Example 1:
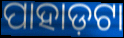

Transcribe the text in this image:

ପାହାଡ଼ଟା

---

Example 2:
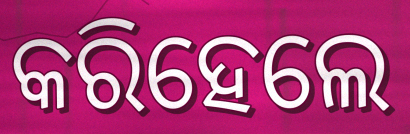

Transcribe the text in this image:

କରିହେଲେ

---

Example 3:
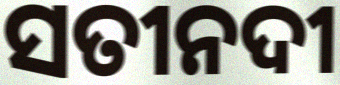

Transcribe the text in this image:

ସତୀନଦୀ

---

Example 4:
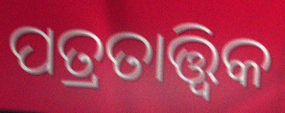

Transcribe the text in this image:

ପତ୍ରତାତ୍ତ୍ୱିକ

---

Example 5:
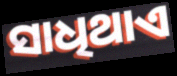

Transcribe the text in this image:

ସାଧିଥାଏ